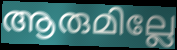
ആരുമില്ലേ